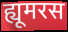
ह्यूमरस